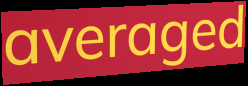
averaged